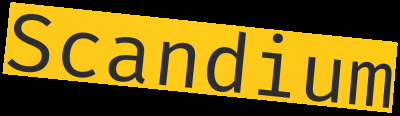
Scandium